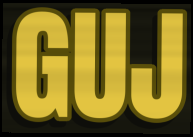
GUJ